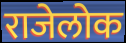
राजेलोक